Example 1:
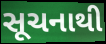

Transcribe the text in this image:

સૂચનાથી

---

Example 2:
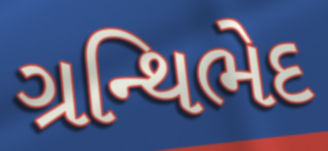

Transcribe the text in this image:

ગ્રન્થિભેદ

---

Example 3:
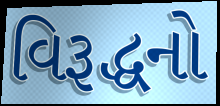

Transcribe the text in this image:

વિરૂદ્ધનો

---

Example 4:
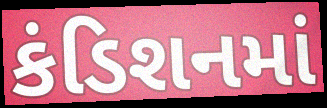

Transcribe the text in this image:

કંડિશનમાં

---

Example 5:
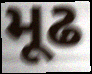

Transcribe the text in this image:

મૂઢ